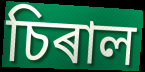
চিৰাল